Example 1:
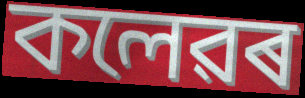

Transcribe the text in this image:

কলেৱৰ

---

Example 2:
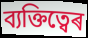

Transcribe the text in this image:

ব্যক্তিত্বেৰ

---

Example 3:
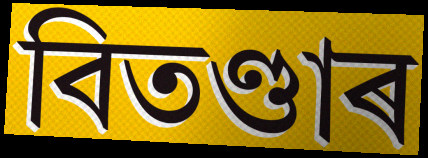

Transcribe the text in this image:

বিতণ্ডাৰ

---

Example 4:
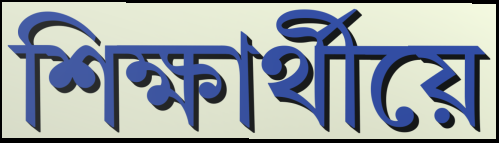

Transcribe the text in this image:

শিক্ষাৰ্থীয়ে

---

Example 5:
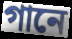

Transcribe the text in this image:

গানে